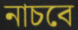
নাচবে